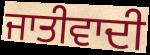
ਜਾਤੀਵਾਦੀ